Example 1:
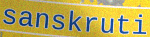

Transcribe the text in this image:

sanskruti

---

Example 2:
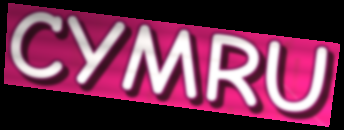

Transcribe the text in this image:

CYMRU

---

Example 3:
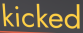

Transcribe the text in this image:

kicked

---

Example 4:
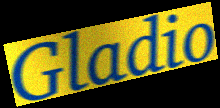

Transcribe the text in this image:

Gladio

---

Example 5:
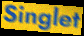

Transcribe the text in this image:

Singlet